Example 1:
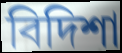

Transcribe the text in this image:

বিদিশা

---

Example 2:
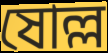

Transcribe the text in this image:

ষোল্ল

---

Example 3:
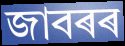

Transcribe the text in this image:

জাবৰৰ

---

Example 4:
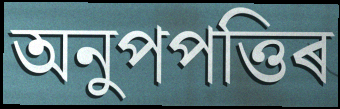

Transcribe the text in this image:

অনুপপত্তিৰ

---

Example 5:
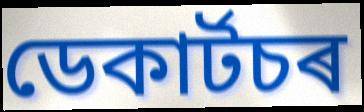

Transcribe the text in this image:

ডেকাৰ্টচৰ